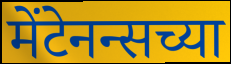
मेंटेनन्सच्या